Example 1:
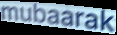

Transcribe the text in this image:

mubaarak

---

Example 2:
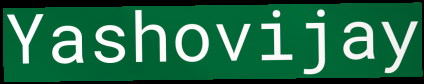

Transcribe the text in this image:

Yashovijay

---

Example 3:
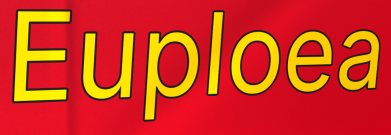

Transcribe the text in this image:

Euploea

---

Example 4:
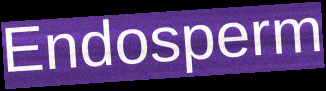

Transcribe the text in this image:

Endosperm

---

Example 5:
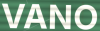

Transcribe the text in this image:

VANO